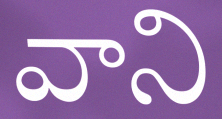
వాని